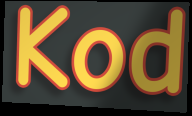
Kod